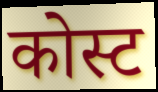
कोस्ट